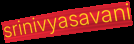
srinivyasavani